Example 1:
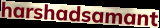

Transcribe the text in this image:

harshadsamant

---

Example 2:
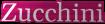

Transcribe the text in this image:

Zucchini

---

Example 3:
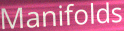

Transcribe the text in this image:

Manifolds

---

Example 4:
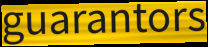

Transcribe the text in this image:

guarantors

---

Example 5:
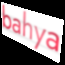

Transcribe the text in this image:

bahya